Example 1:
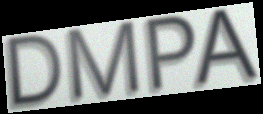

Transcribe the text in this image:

DMPA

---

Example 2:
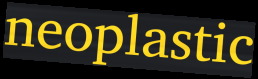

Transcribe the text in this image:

neoplastic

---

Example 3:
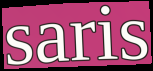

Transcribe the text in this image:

saris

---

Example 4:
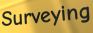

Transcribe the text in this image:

Surveying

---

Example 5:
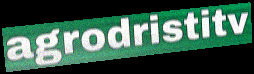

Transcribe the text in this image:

agrodristitv